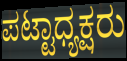
ಪಟ್ಟಾಧ್ಯಕ್ಷರು